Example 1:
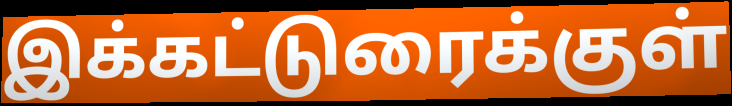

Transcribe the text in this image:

இக்கட்டுரைக்குள்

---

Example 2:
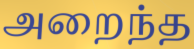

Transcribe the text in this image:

அறைந்த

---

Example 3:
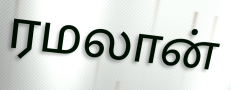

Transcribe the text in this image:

ரமலான்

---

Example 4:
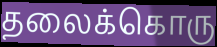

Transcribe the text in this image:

தலைக்கொரு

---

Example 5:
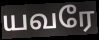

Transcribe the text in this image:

யவரே